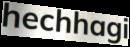
hechhagi